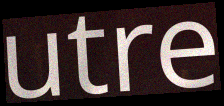
utre